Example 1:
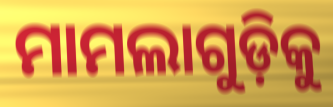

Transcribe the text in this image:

ମାମଲାଗୁଡ଼ିକୁ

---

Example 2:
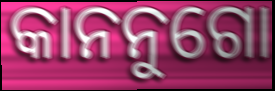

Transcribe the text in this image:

କାନନୁଗୋ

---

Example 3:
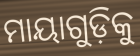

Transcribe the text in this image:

ମାୟାଗୁଡ଼ିକୁ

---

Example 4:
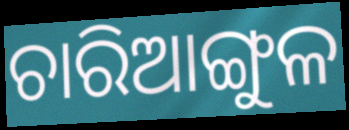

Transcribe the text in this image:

ଚାରିଆଙ୍ଗୁଳ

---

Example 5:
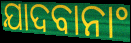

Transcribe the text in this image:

ଯାଦବାନାଂ